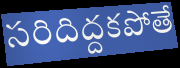
సరిదిద్దకపోతే